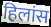
हिलांस